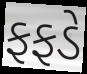
ફફડે